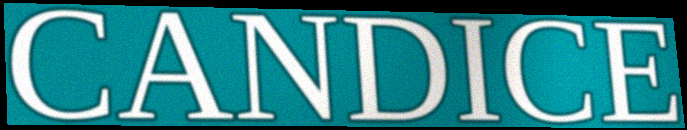
CANDICE